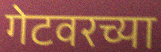
गेटवरच्या